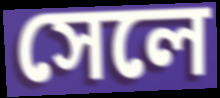
সেলে